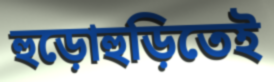
হুড়োহুড়িতেই